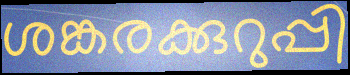
ശങ്കരക്കുറുപ്പി